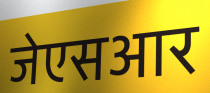
जेएसआर